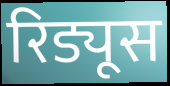
रिड्यूस